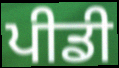
ਪੀਡੀ